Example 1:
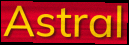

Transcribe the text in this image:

Astral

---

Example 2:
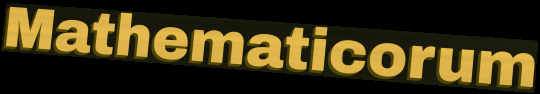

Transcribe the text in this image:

Mathematicorum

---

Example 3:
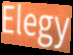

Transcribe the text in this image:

Elegy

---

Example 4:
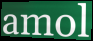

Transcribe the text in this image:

amol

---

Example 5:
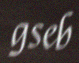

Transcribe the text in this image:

gseb